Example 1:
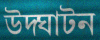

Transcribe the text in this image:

উদ্ঘাটন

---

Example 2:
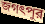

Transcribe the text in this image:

জগৎপুর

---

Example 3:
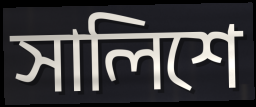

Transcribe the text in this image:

সালিশে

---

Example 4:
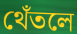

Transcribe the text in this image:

থেঁতলে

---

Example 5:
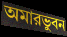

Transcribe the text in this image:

অমারভুবন